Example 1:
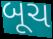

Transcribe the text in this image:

બૂચ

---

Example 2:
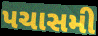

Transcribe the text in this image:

પચાસમી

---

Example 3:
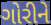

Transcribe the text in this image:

ગોરીને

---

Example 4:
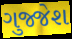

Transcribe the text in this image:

ગુજ્જેશ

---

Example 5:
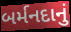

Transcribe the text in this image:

બર્મનદાનું